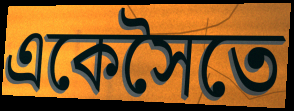
একেসৈতে